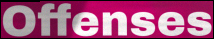
Offenses